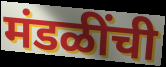
मंडळींची